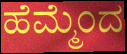
ಹೆಮ್ಮೆಂದ